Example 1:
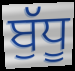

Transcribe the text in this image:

ਬੁੱਧੂ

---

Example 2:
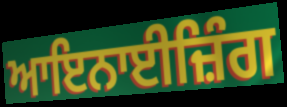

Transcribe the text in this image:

ਆਇਨਾਈਜ਼ਿੰਗ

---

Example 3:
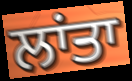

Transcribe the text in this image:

ਲਾਂਤਾ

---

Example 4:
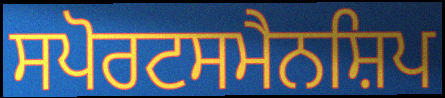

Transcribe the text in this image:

ਸਪੋਰਟਸਮੈਨਸ਼ਿਪ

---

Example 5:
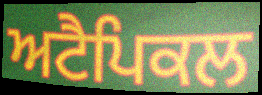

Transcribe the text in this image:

ਅਟੈਪਿਕਲ